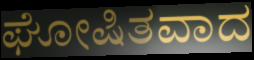
ಘೋಷಿತವಾದ